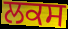
ਲਕਸ